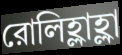
রোলিহ্লাহ্লা